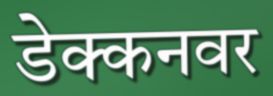
डेक्कनवर